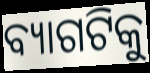
ବ୍ୟାଗଟିକୁ